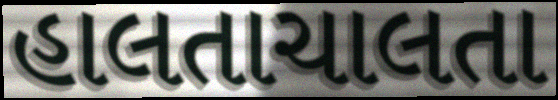
હાલતાચાલતા